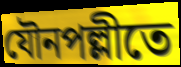
যৌনপল্লীতে